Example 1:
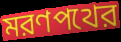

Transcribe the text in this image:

মরণপথের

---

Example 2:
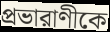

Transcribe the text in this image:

প্রভারাণীকে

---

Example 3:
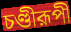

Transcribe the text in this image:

চণ্ডীরূপী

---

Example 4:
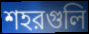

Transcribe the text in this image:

শহরগুলি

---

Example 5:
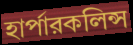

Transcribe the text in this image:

হার্পারকলিন্স